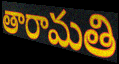
తారామతి